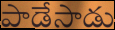
పాడేసాడు